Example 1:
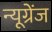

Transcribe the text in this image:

न्यूग्रेंज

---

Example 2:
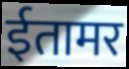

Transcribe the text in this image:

ईतामर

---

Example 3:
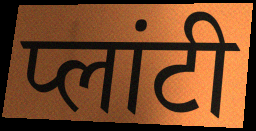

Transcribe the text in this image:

प्लांटी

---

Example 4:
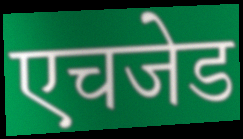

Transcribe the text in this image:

एचजेड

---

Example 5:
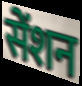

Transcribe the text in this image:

सेंशन